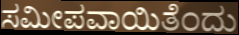
ಸಮೀಪವಾಯಿತೆಂದು